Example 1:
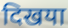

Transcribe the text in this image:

दिखया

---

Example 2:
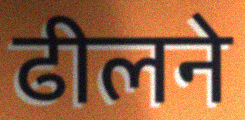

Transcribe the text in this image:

ढीलने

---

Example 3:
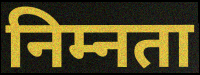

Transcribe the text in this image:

निम्नता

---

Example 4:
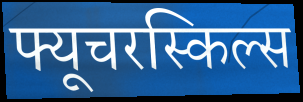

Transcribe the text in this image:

फ्यूचरस्किल्स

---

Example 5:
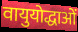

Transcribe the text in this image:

वायुयोद्धाओं